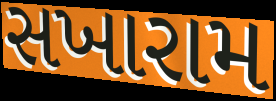
સખારામ